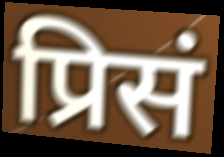
प्रिसं